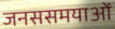
जनससमयाओं